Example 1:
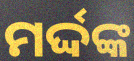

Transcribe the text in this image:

ମର୍ଦ୍ଦଙ୍କ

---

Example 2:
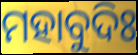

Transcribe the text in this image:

ମହାବୁଦିଃ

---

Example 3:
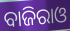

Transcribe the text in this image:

ବାଜିରାଓ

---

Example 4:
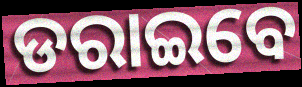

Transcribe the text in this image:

ଡରାଇବେ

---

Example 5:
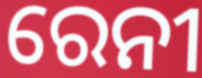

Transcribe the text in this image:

ରେନୀ